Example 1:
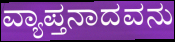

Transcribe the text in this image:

ವ್ಯಾಪ್ತನಾದವನು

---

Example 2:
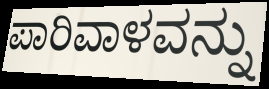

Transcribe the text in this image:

ಪಾರಿವಾಳವನ್ನು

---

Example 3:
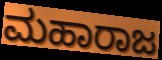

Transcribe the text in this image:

ಮಹಾರಾಜ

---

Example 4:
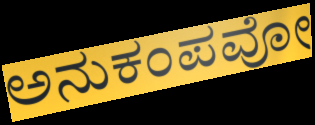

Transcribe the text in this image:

ಅನುಕಂಪವೋ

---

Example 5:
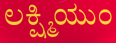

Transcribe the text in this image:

ಲಕ್ಷ್ಮಿಯುಂ